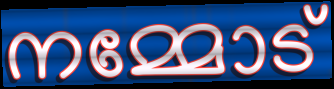
നമ്മോട്